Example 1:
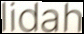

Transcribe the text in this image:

lidah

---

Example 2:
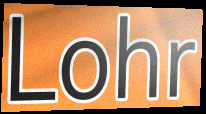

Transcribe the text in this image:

Lohr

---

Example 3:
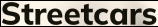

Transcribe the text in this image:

Streetcars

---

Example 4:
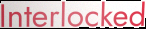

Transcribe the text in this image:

Interlocked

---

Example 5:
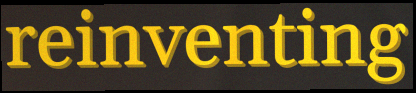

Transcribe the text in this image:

reinventing